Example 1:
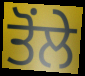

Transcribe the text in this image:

ਤੋਂਲੇ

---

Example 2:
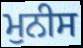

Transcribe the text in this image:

ਮੁਨੀਸ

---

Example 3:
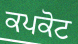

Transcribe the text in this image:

ਕਪਕੋਟ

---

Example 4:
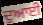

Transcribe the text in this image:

ਦੁਆਈ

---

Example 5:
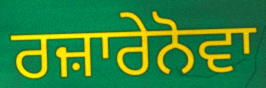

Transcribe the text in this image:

ਰਜ਼ਾਰੇਨੋਵਾ